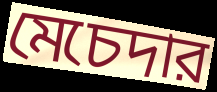
মেচেদার